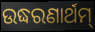
ଉଦ୍ଧରଣାର୍ଥମ୍